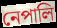
নেপালি